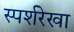
स्पर्शरेखा